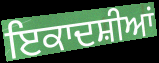
ਇਕਾਦਸ਼ੀਆਂ